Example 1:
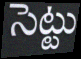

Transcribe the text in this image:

సెట్టు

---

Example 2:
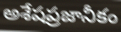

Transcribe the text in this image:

అశేషప్రజానీకం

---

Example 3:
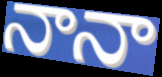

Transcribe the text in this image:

నానా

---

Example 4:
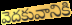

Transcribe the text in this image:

వెదకువానికి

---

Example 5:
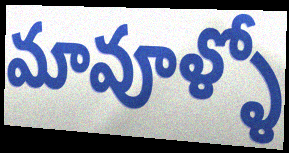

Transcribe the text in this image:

మావూళ్ళో